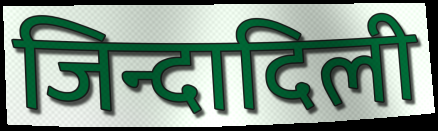
जिन्दादिली